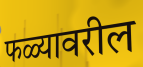
फळ्यावरील